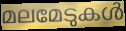
മലമേടുകൾ